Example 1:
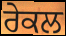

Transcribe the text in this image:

ਰੇਕਲ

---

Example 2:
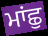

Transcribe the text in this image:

ਮਾਂਛੁ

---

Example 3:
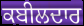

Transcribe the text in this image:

ਕਬੀਲਦਾਰ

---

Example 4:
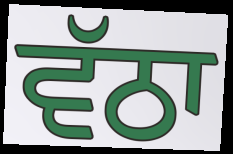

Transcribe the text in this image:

ਵੱਠਾ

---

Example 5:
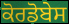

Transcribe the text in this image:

ਕੋਰਡੋਬੇਸ